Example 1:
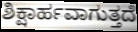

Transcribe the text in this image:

ಶಿಕ್ಷಾರ್ಹವಾಗುತ್ತದೆ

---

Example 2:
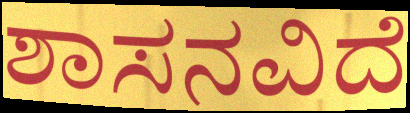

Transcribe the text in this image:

ಶಾಸನವಿದೆ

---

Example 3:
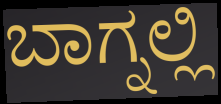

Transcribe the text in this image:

ಬಾಗ್ನಲ್ಲಿ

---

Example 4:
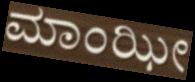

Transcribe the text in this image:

ಮಾಂಝೀ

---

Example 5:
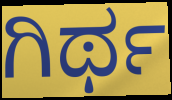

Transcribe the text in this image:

ಗಿರ್ಥ